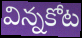
విన్నకోట